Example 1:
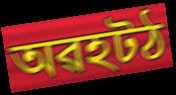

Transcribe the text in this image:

অৱহটঠ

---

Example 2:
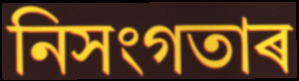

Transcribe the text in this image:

নিসংগতাৰ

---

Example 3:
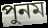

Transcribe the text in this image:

পুনম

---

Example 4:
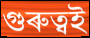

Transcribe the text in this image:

গুৰুত্বই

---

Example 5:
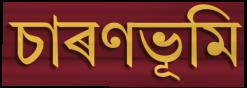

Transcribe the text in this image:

চাৰণভূমি